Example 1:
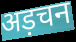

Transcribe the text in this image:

अड़चन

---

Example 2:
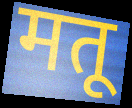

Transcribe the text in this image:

मतू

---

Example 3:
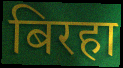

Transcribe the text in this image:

बिरहा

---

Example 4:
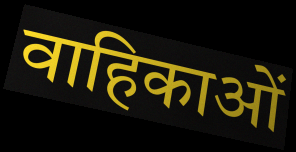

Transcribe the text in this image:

वाहिकाओं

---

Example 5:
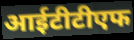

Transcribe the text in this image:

आईटीटीएफ